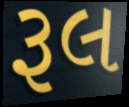
રૂલ